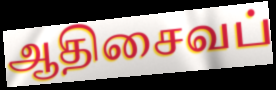
ஆதிசைவப்